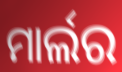
ମାର୍ଲର